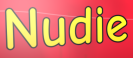
Nudie